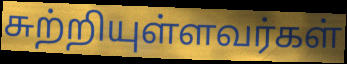
சுற்றியுள்ளவர்கள்